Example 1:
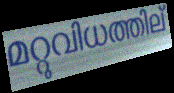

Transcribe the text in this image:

മറ്റുവിധത്തില്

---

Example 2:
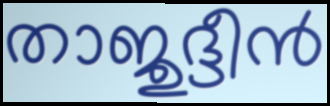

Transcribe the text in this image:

താജുദ്ദീൻ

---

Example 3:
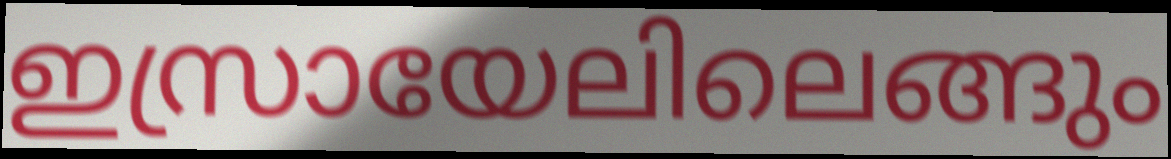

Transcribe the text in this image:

ഇസ്രായേലിലെങ്ങും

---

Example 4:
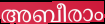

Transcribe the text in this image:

അബീരാം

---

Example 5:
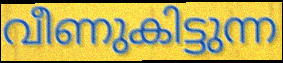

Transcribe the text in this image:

വീണുകിട്ടുന്ന